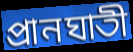
প্রানঘাতী